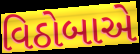
વિઠોબાએ